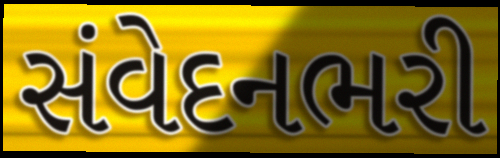
સંવેદનભરી